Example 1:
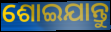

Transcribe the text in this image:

ଶୋଇଯାନ୍ତୁ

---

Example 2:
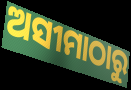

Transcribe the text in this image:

ଅସୀମାଠାରୁ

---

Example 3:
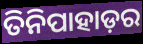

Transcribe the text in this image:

ତିନିପାହାଡ଼ର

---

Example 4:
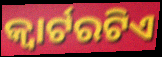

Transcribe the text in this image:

କ୍ୱାର୍ଟରଟିଏ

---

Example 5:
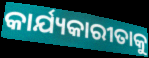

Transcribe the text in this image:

କାର୍ଯ୍ୟକାରୀତାକୁ